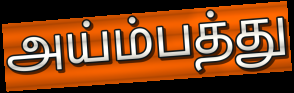
அய்ம்பத்து